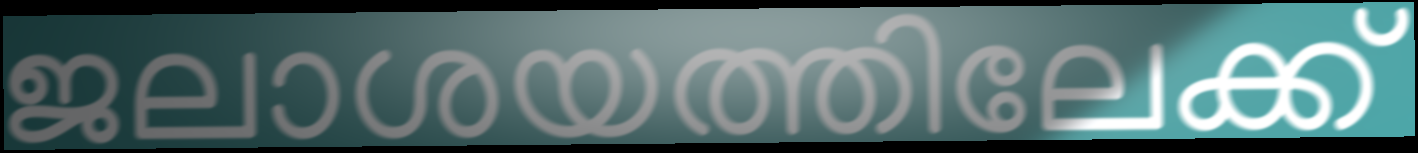
ജലാശയത്തിലേക്ക്